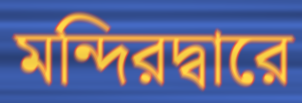
মন্দিরদ্বারে